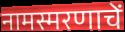
नामस्मरणाचें